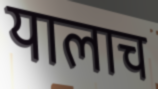
यालाच